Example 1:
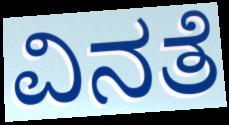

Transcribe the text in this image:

ವಿನತೆ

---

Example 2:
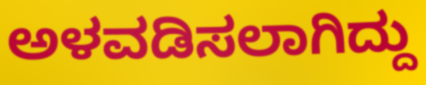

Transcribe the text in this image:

ಅಳವಡಿಸಲಾಗಿದ್ದು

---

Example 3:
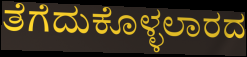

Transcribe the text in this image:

ತೆಗೆದುಕೊಳ್ಳಲಾರದ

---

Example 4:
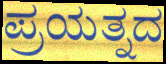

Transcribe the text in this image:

ಪ್ರಯತ್ನದ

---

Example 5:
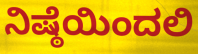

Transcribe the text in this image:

ನಿಷ್ಠೆಯಿಂದಲಿ